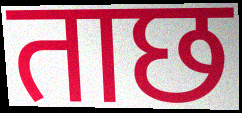
ताछ